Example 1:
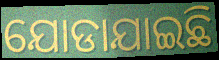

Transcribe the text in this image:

ଯୋଡାଯାଇଛି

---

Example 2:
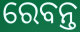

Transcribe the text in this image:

ରେବନ୍ତ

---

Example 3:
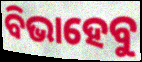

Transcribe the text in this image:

ବିଭାହେବୁ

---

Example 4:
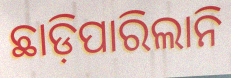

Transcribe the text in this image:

ଛାଡ଼ିପାରିଲାନି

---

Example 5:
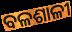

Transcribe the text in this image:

ବଳଶାଳୀ